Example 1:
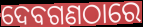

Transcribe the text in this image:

ଦେବଗଣଠାରେ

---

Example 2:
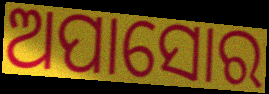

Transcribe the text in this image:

ଅପାସୋର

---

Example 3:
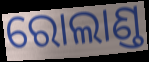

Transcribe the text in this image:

ରୋଲାଣ୍ଡ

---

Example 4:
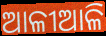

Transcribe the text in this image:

ଆଳୀଆଳି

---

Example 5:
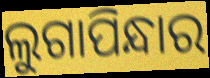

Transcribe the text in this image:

ଲୁଗାପିନ୍ଧାର